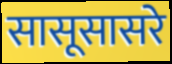
सासूसासरे